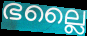
ഭല്ലൈ